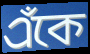
এঁকে